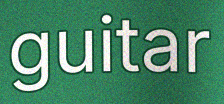
guitar